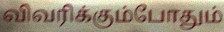
விவரிக்கும்போதும்